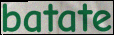
batate